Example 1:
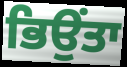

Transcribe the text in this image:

ਭਿਉਂਤਾ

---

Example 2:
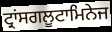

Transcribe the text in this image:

ਟ੍ਰਾਂਸਗਲੂਟਾਮਿਨੇਜ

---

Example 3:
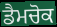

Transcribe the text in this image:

ਡੈਮਚੋਕ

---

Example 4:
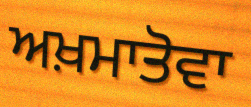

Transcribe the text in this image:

ਅਖ਼ਮਾਤੋਵਾ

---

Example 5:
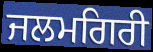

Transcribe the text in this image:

ਜਲਮਗਿਰੀ